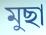
মুছা